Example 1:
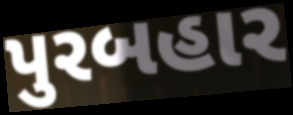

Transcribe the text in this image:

પુરબહાર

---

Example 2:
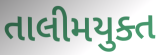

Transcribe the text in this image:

તાલીમયુક્ત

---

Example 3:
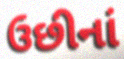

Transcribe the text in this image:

ઉછીનાં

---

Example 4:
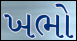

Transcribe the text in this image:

ખભો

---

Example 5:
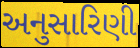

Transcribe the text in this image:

અનુસારિણી